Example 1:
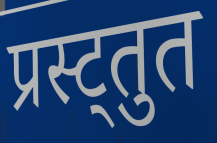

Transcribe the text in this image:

प्रस्ट्तुत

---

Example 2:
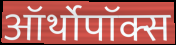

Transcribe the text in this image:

ऑर्थोपॉक्स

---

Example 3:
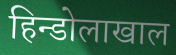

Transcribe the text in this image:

हिन्डोलाखाल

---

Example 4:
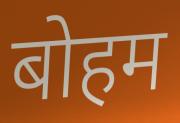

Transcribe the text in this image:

बोहम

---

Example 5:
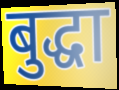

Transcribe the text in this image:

बुद्धा